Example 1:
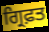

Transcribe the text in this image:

ਗ੍ਰਿਫ਼ਤ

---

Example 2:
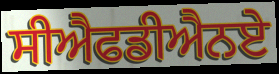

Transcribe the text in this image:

ਸੀਐਫਡੀਐਨਏ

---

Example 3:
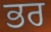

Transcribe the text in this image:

ਭਰ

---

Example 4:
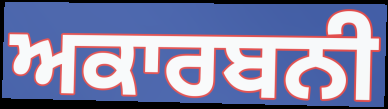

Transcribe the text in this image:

ਅਕਾਰਬਨੀ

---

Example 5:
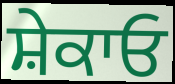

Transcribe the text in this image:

ਸ਼ੇਕਾਓ